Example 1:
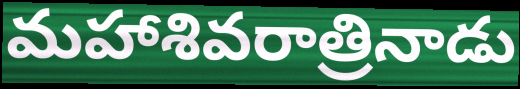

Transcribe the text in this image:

మహాశివరాత్రినాడు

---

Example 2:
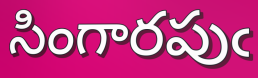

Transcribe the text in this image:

సింగారపుఁ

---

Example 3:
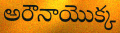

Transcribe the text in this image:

అరౌనాయొక్క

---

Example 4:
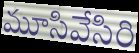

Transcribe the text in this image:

మూసివేసిరి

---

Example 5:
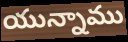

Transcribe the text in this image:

యున్నాము